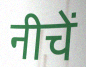
नीचें